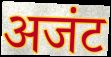
अजंट